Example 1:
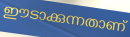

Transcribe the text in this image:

ഈടാക്കുന്നതാണ്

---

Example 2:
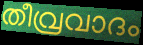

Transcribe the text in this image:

തീവ്രവാദം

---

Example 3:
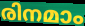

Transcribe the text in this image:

രിനമാം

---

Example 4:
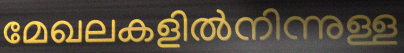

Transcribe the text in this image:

മേഖലകളിൽനിന്നുള്ള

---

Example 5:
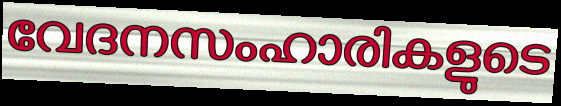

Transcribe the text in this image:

വേദനസംഹാരികളുടെ